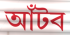
আঁটব